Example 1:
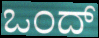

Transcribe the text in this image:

ಒಂದ್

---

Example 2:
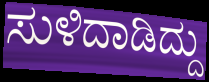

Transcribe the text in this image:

ಸುಳಿದಾಡಿದ್ದು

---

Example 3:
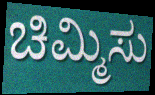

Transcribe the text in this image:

ಚಿಮ್ಮಿಸು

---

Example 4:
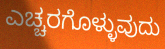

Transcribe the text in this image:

ಎಚ್ಚರಗೊಳ್ಳುವುದು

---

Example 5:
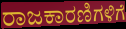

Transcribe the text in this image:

ರಾಜಕಾರಣಿಗಳಿಗೆ